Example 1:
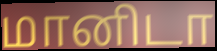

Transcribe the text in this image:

மானிடா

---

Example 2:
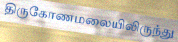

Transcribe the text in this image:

திருகோணமலையிலிருந்து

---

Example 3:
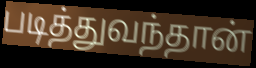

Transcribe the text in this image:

படித்துவந்தான்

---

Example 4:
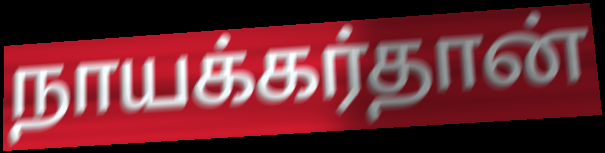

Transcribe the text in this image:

நாயக்கர்தான்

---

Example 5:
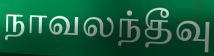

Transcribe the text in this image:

நாவலந்தீவு